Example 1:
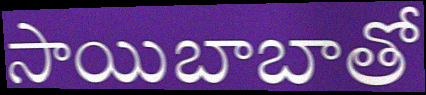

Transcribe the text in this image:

సాయిబాబాతో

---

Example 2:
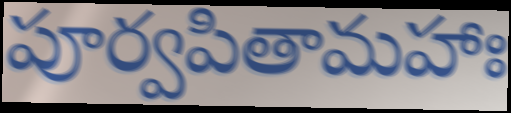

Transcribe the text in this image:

పూర్వపితామహాః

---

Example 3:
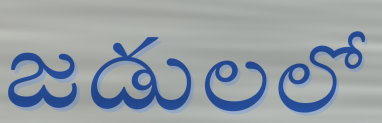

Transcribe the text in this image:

జడులలో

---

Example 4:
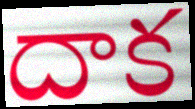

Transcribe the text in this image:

దాక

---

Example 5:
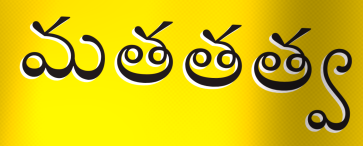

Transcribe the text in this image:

మతతత్వ